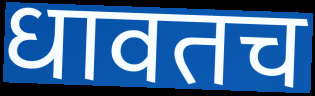
धावतच